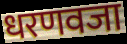
धरणवजा